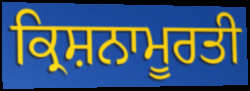
ਕ੍ਰਿਸ਼ਨਾਮੂਰਤੀ